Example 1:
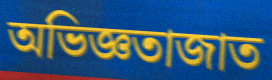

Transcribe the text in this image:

অভিজ্ঞতাজাত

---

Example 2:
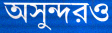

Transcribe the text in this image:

অসুন্দরও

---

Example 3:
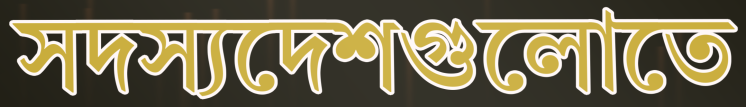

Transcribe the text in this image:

সদস্যদেশগুলোতে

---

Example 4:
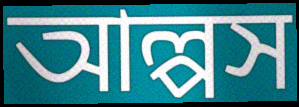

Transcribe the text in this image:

আল্পস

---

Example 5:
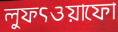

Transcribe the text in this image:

লুফৎওয়াফো